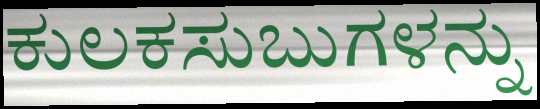
ಕುಲಕಸುಬುಗಳನ್ನು